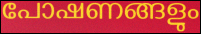
പോഷണങ്ങളും